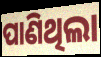
ପାଣିଥିଲା